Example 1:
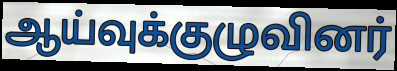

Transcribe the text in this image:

ஆய்வுக்குழுவினர்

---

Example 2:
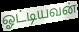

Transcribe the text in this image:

ஓட்டியவன்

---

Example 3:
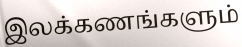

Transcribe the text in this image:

இலக்கணங்களும்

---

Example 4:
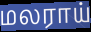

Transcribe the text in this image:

மலராய்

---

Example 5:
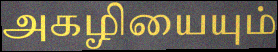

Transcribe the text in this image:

அகழியையும்